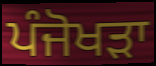
ਪੰਜੋਖੜਾ